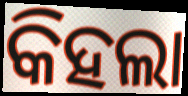
କିହଲା